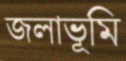
জলাভূমি